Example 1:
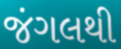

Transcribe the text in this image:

જંગલથી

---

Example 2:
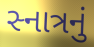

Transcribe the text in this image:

સ્નાત્રનું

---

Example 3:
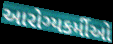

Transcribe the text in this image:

આરોગ્યકર્મીઓ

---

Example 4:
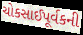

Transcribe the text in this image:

ચોકસાઈપૂર્વકની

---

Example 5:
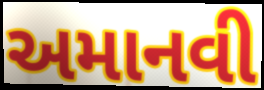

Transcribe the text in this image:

અમાનવી